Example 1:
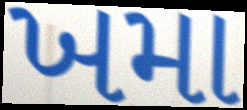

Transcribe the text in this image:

ખમા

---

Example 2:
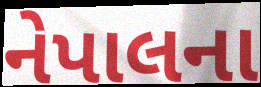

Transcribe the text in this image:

નેપાલના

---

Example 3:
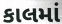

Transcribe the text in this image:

કાલમાં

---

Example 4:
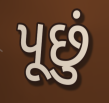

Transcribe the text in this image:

પૂછું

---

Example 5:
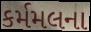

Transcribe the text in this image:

કર્મમલના